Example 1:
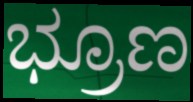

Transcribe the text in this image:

ಭ್ರೂಣ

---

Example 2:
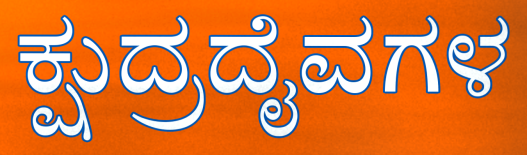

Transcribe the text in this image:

ಕ್ಷುದ್ರದೈವಗಳ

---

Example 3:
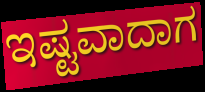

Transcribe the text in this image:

ಇಷ್ಟವಾದಾಗ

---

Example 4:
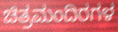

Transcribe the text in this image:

ಚಿತ್ರಮಂದಿರಗಳ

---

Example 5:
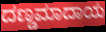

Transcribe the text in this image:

ದಣ್ಡಮಾದಾಯ